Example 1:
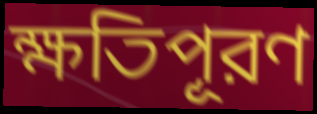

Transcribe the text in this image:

ক্ষতিপূরণ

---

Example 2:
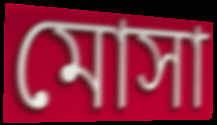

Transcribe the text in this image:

মোসা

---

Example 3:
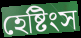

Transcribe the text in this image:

হেষ্টিংস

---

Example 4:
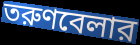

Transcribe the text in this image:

তরুণবেলার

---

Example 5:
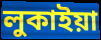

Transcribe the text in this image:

লুকাইয়া